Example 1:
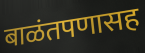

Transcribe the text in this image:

बाळंतपणासह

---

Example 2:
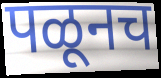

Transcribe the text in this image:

पळूनच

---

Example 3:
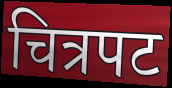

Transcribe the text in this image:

चित्रपट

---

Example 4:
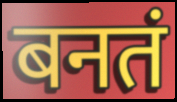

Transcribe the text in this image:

बनतं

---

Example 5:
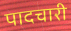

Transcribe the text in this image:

पादचारी